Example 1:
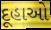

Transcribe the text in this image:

દૂહાઓ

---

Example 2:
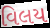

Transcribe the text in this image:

વિલય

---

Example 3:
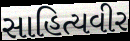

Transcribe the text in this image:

સાહિત્યવીર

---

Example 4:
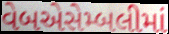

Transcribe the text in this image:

વેબએસેમ્બલીમાં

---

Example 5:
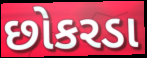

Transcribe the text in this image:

છોકરડા